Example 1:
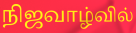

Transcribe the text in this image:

நிஜவாழ்வில்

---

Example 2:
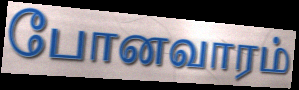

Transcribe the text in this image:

போனவாரம்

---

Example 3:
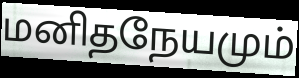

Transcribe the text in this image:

மனிதநேயமும்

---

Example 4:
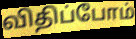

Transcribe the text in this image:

விதிப்போம்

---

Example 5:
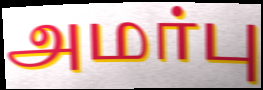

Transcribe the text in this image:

அமர்பு